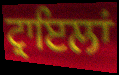
ਟ੍ਰਾਇਲਾਂ